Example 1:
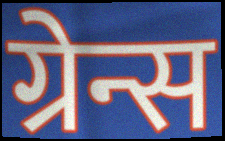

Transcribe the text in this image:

ग्रेन्स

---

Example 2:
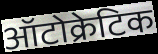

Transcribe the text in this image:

ऑटोक्रेटिक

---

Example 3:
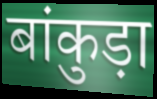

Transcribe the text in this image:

बांकुड़ा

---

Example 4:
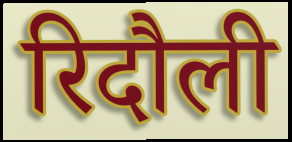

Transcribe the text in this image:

रिदौली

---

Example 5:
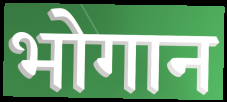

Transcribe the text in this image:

भोगान